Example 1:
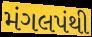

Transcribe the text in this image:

મંગલપંથી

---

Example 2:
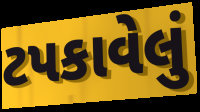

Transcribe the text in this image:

ટપકાવેલું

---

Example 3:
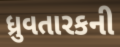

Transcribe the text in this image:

ધ્રુવતારકની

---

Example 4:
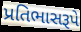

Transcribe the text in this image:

પ્રતિભાસરૂપે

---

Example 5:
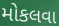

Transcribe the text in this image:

મોકલવા